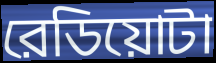
রেডিয়োটা